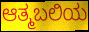
ಆತ್ಮಬಲಿಯ